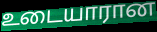
உடையாரான